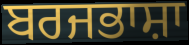
ਬਰਜਭਾਸ਼ਾ